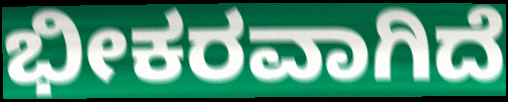
ಭೀಕರವಾಗಿದೆ